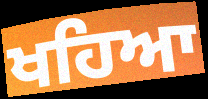
ਖਹਿਆ